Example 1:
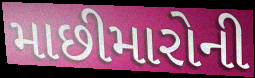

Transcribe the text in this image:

માછીમારોની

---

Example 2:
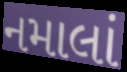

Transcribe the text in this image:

નમાલાં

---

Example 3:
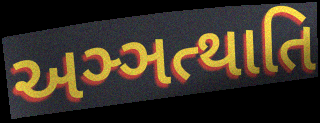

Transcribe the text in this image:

અઞ્ઞત્થાતિ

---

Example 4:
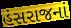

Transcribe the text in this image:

હંસરાજનાં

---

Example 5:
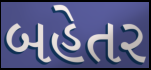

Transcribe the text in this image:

બહેતર